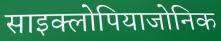
साइक्लोपियाजोनिक